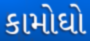
કામોઘો